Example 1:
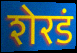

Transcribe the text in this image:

शेरडं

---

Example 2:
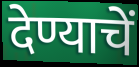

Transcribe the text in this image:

देण्याचें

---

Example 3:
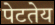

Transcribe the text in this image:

पेटतेय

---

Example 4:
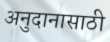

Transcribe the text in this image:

अनुदानासाठी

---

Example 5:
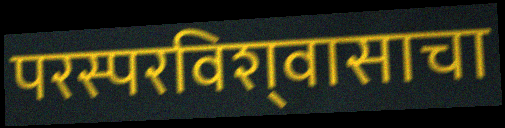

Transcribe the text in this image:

परस्परविश्वासाचा